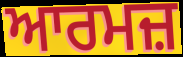
ਆਰਮਜ਼